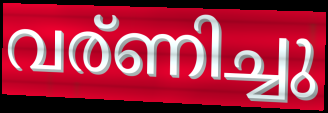
വര്ണിച്ചു